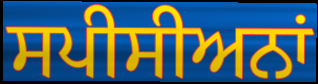
ਸਪੀਸੀਅਨਾਂ